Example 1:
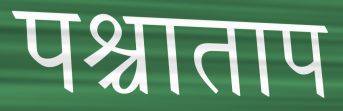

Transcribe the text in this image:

पश्चाताप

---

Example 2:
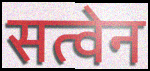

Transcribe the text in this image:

सत्वेन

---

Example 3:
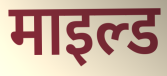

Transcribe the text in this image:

माइल्ड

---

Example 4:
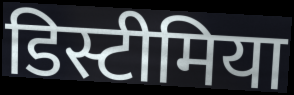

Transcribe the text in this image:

डिस्टीमिया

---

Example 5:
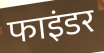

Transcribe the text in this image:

फाइंडर